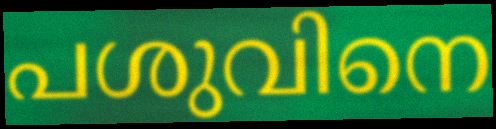
പശുവിനെ